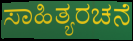
ಸಾಹಿತ್ಯರಚನೆ